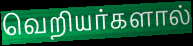
வெறியர்களால்